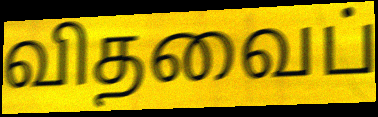
விதவைப்